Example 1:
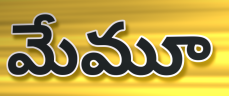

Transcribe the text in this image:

మేమూ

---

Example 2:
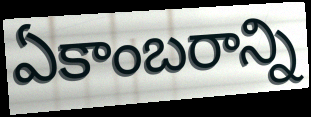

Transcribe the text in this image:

ఏకాంబరాన్ని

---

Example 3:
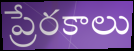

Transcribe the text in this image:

ప్రేరకాలు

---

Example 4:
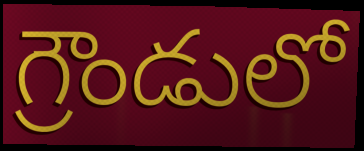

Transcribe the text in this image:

గ్రౌండులో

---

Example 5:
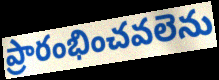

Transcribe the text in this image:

ప్రారంభించవలెను